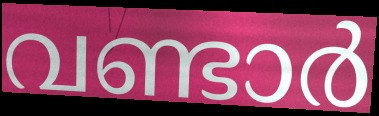
വണ്ടാർ